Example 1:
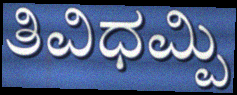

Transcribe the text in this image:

ತಿವಿಧಮ್ಪಿ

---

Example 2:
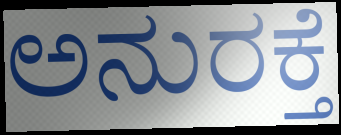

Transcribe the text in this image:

ಅನುರಕ್ತೆ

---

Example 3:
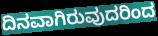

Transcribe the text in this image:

ದಿನವಾಗಿರುವುದರಿಂದ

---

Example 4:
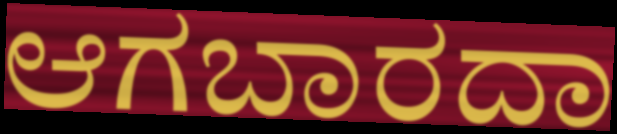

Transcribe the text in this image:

ಆಗಬಾರದಾ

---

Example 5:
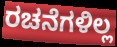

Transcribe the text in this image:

ರಚನೆಗಳಿಲ್ಲ